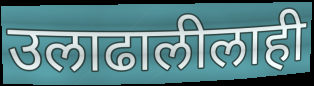
उलाढालीलाही